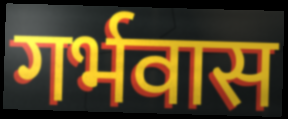
गर्भवास